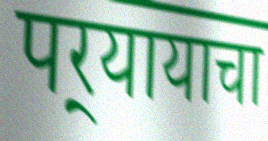
पर्यायाचा